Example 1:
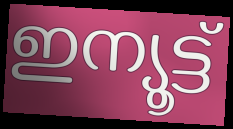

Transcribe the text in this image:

ഇന്യൂട്ട്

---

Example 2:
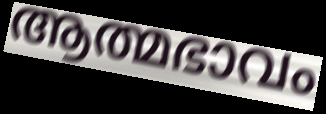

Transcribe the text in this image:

ആത്മഭാവം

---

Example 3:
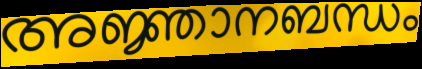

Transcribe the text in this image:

അജ്ഞാനബന്ധം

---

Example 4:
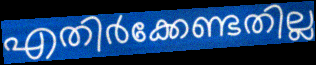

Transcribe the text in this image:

എതിർക്കേണ്ടതില്ല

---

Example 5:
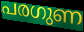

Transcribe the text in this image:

പരഗുണ